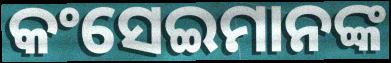
କଂସେଇମାନଙ୍କ